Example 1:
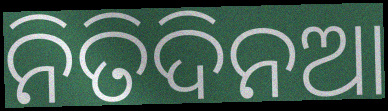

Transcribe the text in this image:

ନିତିଦିନଆ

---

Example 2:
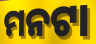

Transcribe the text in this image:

ମନଟା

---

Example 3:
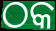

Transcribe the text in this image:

ଠକ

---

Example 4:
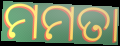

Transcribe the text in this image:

ମମତା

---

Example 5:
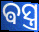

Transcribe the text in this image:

ଵସ୍ତ୍ର